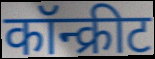
कॉन्क्रीट